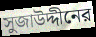
সুজাউদ্দীনের